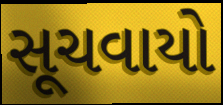
સૂચવાયો